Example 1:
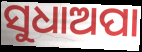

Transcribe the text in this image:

ସୁଧାଅପା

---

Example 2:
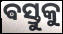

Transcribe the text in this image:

ଵସ୍ତୁକୁ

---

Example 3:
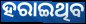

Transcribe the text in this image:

ହରାଇଥିବ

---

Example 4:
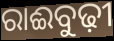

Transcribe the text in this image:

ରାଈବୁଢ଼ୀ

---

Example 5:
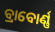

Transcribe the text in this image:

ବ୍ରାବୋର୍ଣ୍ଣ